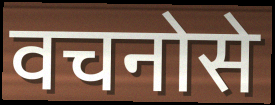
वचनोसे